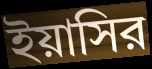
ইয়াসির